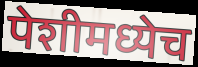
पेशीमध्येच